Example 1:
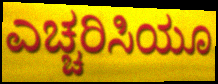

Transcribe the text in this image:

ಎಚ್ಚರಿಸಿಯೂ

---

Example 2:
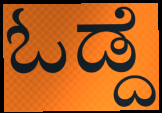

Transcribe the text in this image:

ಓಡ್ದೆ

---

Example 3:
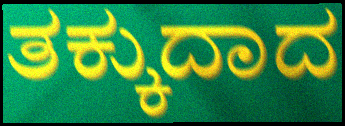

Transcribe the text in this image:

ತಕ್ಕುದಾದ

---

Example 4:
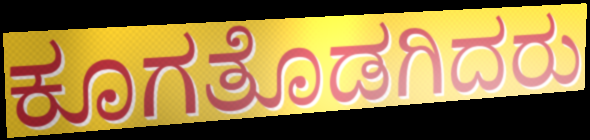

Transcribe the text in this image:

ಕೂಗತೊಡಗಿದರು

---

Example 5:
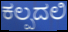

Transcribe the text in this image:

ಕಲ್ಪದಲಿ